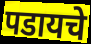
पडायचे